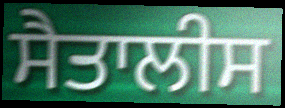
ਸੈਤਾਲੀਸ